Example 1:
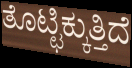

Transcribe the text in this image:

ತೊಟ್ಟಿಕ್ಕುತ್ತಿದೆ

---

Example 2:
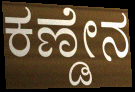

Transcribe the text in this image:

ಕಣ್ಡೇನ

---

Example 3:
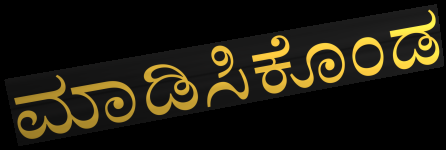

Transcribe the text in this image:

ಮಾಡಿಸಿಕೊಂಡ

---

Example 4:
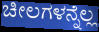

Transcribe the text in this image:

ಚೀಲಗಳನ್ನೆಲ್ಲ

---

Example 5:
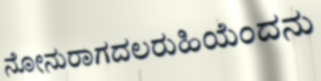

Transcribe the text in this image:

ನೋನುರಾಗದಲರುಹಿಯೆಂದನು